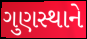
ગુણસ્થાને